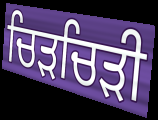
ਚਿੜਚਿੜੀ